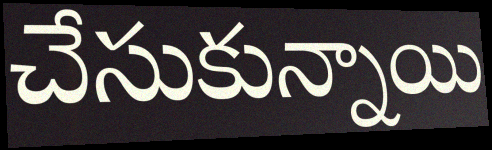
చేసుకున్నాయి